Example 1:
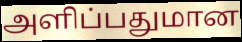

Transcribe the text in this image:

அளிப்பதுமான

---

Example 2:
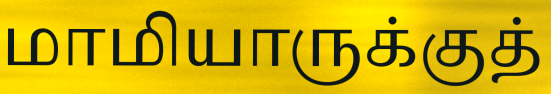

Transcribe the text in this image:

மாமியாருக்குத்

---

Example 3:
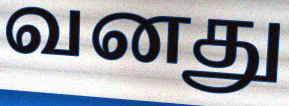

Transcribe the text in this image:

வனது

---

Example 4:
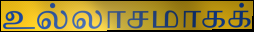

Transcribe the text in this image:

உல்லாசமாகக்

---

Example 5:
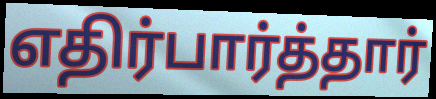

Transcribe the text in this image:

எதிர்பார்த்தார்